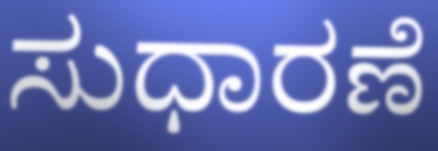
ಸುಧಾರಣೆ